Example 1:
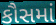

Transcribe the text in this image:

કૌસમાં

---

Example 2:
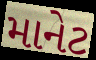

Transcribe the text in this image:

માનેટ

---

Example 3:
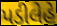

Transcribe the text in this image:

પડીલેહે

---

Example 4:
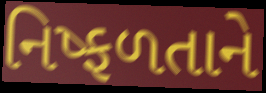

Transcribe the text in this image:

નિષ્ફળતાને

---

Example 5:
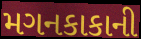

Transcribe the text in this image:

મગનકાકાની